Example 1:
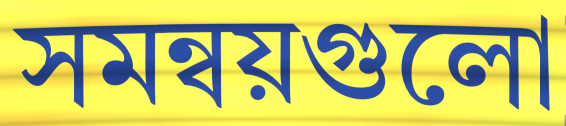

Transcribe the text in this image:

সমন্বয়গুলো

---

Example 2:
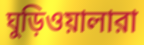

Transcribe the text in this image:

ঘুড়িওয়ালারা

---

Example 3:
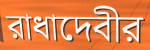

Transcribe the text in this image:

রাধাদেবীর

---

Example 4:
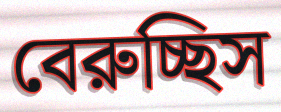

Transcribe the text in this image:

বেরুচ্ছিস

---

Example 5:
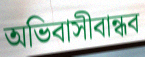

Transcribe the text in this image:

অভিবাসীবান্ধব